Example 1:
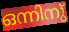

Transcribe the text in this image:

ഒന്നിനു്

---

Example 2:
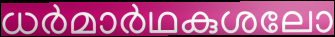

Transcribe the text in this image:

ധർമാർഥകുശലോ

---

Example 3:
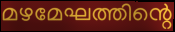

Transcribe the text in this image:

മഴമേഘത്തിന്റെ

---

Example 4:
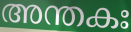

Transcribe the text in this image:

അന്തകഃ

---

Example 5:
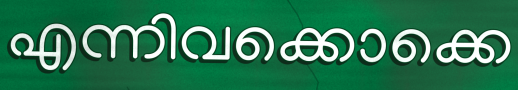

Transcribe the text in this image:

എന്നിവക്കൊക്കെ